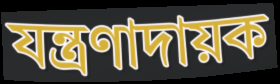
যন্ত্ৰণাদায়ক